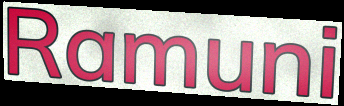
Ramuni